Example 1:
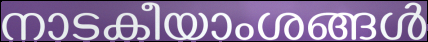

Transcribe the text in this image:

നാടകീയാംശങ്ങൾ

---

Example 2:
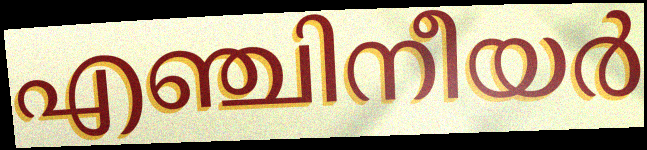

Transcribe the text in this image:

എഞ്ചിനീയർ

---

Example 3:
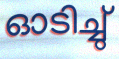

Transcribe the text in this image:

ഓടിച്ചു്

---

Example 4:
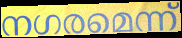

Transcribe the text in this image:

നഗരമെന്ന്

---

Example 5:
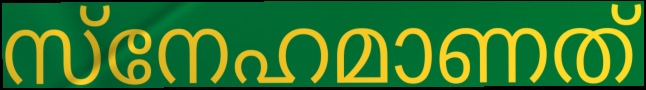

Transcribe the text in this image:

സ്നേഹമാണത്